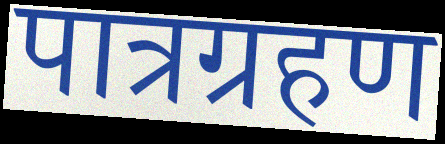
पात्रग्रहण